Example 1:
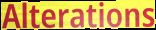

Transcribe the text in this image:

Alterations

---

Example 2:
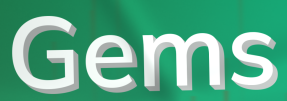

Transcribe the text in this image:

Gems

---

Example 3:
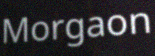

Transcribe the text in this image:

Morgaon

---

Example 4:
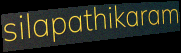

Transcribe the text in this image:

silapathikaram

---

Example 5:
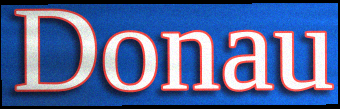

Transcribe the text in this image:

Donau